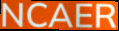
NCAER